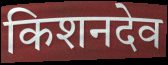
किशनदेव